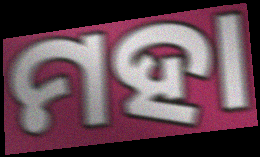
ମହା